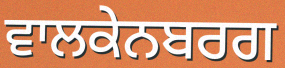
ਵਾਲਕੇਨਬਰਗ